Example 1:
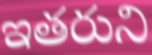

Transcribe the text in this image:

ఇతరుని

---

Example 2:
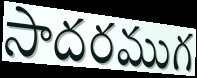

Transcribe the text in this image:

సాదరముగ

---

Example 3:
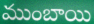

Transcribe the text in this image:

ముంబాయి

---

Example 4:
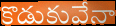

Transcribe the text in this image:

కొడుకువేనా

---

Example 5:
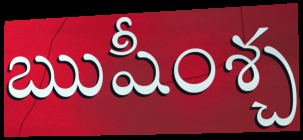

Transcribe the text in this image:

ఋషీంశ్చ